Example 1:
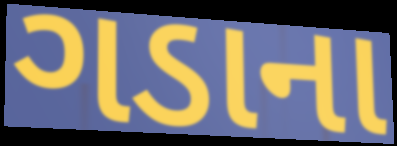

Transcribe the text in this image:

ગડાના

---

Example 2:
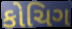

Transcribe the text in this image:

કોચિગ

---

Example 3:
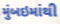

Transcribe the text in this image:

મુંબઇમાંથી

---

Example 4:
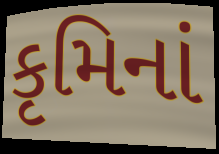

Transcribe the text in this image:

કૃમિનાં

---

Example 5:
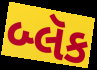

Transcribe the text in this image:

બ્લૅક